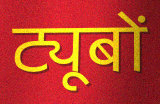
ट्यूबों